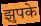
झुपके